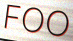
FOO